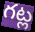
గట్ల